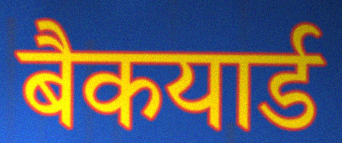
बैकयार्ड